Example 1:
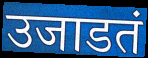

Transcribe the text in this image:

उजाडतं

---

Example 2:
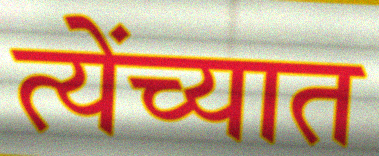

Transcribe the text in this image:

त्येंच्यात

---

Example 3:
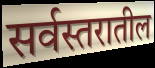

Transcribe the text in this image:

सर्वस्तरातील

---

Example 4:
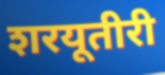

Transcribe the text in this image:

शरयूतीरी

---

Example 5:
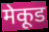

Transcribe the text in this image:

मेकूड